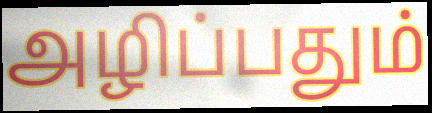
அழிப்பதும்